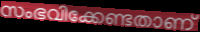
സംഭവിക്കേണ്ടതാണ്